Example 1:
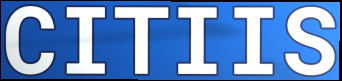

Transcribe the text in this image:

CITIIS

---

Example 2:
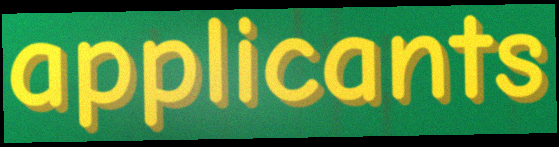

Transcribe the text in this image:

applicants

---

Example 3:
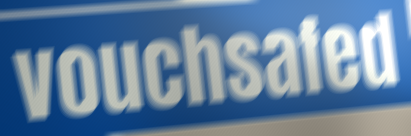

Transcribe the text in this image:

vouchsafed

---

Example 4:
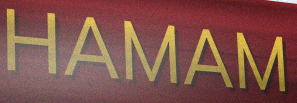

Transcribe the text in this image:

HAMAM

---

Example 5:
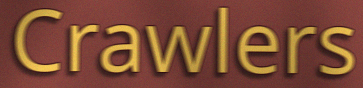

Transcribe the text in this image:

Crawlers